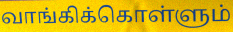
வாங்கிக்கொள்ளும்